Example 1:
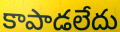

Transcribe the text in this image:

కాపాడలేదు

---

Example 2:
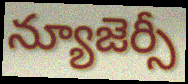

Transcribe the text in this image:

న్యూజెర్సీ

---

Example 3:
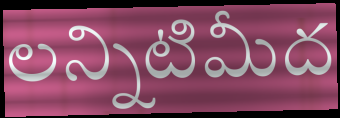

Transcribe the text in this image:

లన్నిటిమీద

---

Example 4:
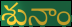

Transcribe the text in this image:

శునాం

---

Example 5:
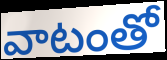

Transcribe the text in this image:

వాటంతో